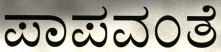
ಪಾಪವಂತೆ